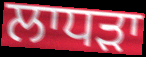
ਲਾਧੜਾ